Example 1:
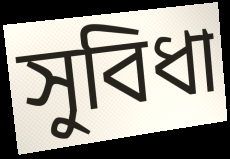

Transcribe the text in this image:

সুবিধা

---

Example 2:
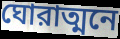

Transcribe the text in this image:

ঘোরাত্মনে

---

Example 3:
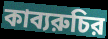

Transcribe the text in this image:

কাব্যরুচির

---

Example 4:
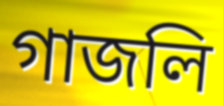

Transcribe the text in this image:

গাজলি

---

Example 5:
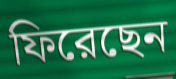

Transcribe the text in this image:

ফিরেছেন